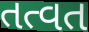
તત્વત